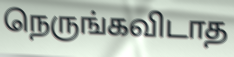
நெருங்கவிடாத